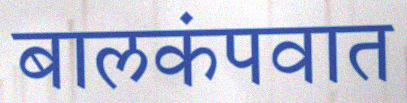
बालकंपवात